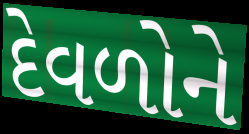
દેવળોને